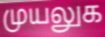
முயலுக